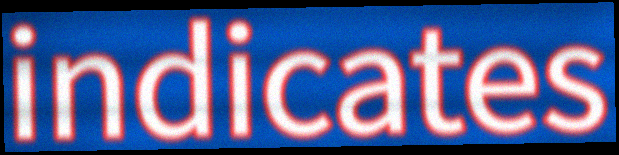
indicates